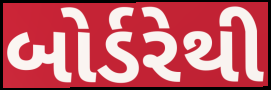
બોર્ડરેથી